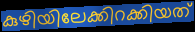
കുഴിയിലേക്കിറക്കിയത്